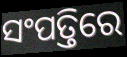
ସଂପତ୍ତିରେ